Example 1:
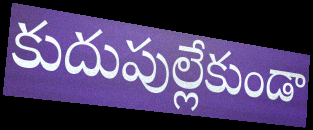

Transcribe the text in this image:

కుదుపుల్లేకుండా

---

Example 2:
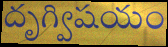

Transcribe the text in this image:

దృగ్విషయం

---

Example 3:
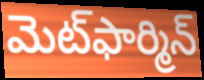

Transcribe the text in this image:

మెట్‌ఫార్మిన్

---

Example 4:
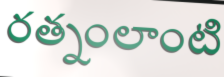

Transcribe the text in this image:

రత్నంలాంటి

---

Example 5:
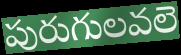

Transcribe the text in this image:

పురుగులవలె